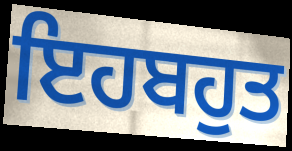
ਇਹਬਹੁਤ